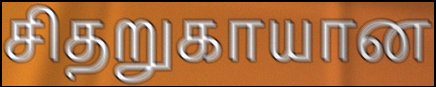
சிதறுகாயான